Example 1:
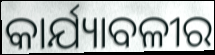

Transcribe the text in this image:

କାର୍ଯ୍ୟାବଳୀର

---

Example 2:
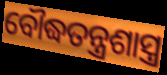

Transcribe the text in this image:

ବୌଦ୍ଧତନ୍ତ୍ରଶାସ୍ତ୍ର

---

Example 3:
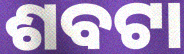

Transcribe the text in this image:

ଶବଟା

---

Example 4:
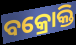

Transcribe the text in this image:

ବକ୍ରୋକ୍ତି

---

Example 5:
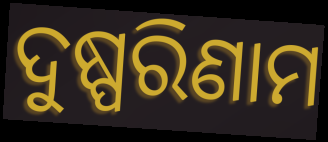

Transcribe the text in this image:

ଦୁଷ୍ପରିଣାମ